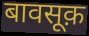
बावसूक़